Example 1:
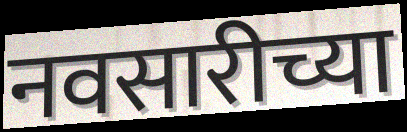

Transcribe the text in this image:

नवसारीच्या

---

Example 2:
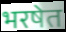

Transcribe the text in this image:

भरषेत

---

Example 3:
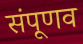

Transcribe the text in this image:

संपूणव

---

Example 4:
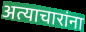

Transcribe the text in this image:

अत्याचारांना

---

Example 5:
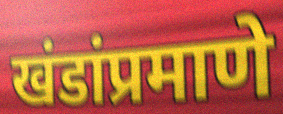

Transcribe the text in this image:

खंडांप्रमाणे